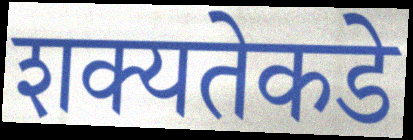
शक्यतेकडे